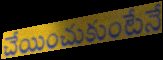
చేయించుకుంటేనే